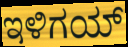
ಇಳಿಗಯ್